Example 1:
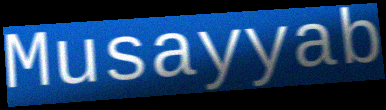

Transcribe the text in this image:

Musayyab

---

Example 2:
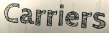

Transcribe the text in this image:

Carriers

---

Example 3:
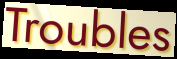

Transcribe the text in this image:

Troubles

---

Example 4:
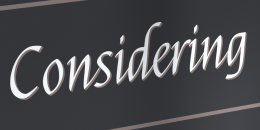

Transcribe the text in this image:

Considering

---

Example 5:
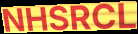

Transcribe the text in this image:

NHSRCL